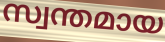
സ്വന്തമായ